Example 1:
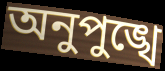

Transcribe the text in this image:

অনুপুঙ্খে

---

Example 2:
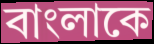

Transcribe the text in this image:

বাংলাকে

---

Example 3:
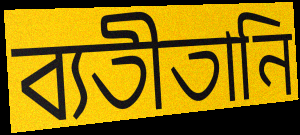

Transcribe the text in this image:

ব্যতীতানি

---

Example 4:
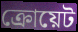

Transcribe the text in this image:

ক্রোয়েট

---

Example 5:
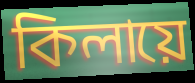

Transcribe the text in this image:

কিলায়ে